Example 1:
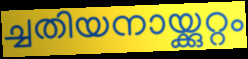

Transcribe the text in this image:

ച്ചതിയനായ്ക്കുറ്റം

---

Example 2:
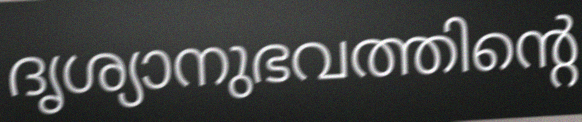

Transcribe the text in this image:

ദൃശ്യാനുഭവത്തിന്റെ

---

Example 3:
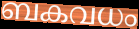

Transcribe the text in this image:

ബകവധം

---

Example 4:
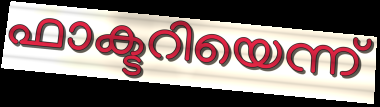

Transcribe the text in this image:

ഫാക്ടറിയെന്ന്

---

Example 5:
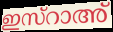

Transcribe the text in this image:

ഇസ്റാഅ്